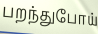
பறந்துபோய்